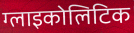
ग्लाइकोलिटिक